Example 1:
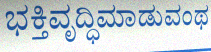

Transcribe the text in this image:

ಭಕ್ತಿವೃದ್ಧಿಮಾಡುವಂಥ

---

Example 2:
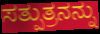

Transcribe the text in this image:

ಸತ್ಪುತ್ರನನ್ನು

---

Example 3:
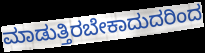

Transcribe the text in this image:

ಮಾಡುತ್ತಿರಬೇಕಾದುದರಿಂದ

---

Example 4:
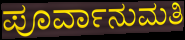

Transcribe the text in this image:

ಪೂರ್ವಾನುಮತಿ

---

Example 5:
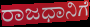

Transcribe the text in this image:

ರಾಜಧಾನಿಗೆ